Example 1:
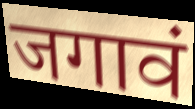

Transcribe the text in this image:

जगावं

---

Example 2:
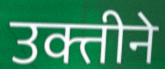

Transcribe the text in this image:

उक्तीने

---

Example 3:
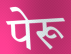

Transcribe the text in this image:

पेरू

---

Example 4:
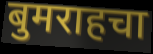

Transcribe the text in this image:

बुमराहचा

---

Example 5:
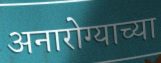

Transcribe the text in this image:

अनारोग्याच्या